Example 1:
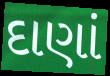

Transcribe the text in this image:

દાણાં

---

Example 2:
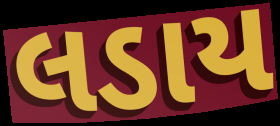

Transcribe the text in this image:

લડાય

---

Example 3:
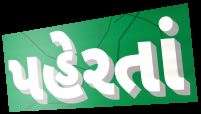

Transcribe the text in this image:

પહેરતાં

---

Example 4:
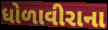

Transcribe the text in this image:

ધોળાવીરાના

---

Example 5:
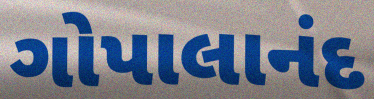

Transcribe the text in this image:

ગોપાલાનંદ